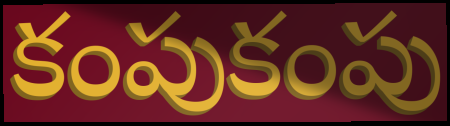
కంపుకంపు